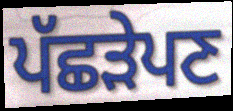
ਪੱਛੜੇਪਣ